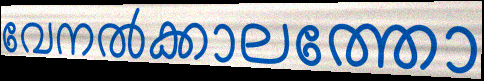
വേനൽക്കാലത്തോ